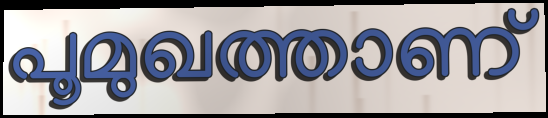
പൂമുഖത്താണ്